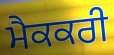
ਮੈਕਕਰੀ